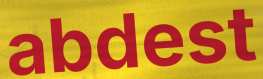
abdest